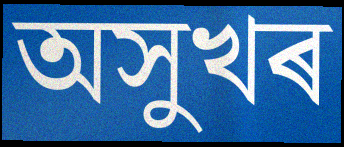
অসুখৰ